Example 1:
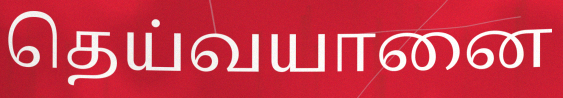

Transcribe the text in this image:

தெய்வயானை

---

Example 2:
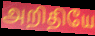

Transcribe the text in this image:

அறிதியே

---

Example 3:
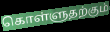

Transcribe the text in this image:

கொள்ளுதற்கும்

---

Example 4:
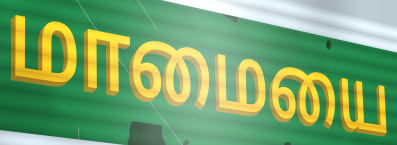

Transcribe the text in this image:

மாமையை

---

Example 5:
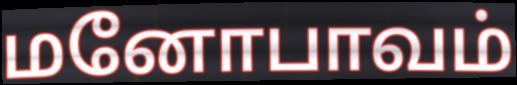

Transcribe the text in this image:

மனோபாவம்